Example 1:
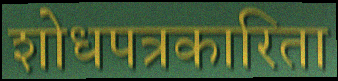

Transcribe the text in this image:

शोधपत्रकारिता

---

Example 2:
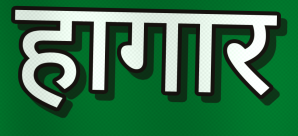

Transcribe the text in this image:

हागार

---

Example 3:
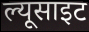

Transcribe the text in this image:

ल्यूसाइट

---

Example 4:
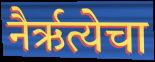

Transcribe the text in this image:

नैर्ऋत्येचा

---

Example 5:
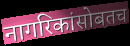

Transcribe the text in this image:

नागरिकांसोबतच